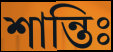
শান্তিঃ